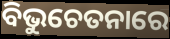
ବିଭୁଚେତନାରେ